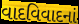
વાદવિવાદનાં